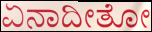
ಏನಾದೀತೋ